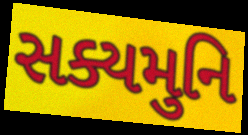
સક્યમુનિ